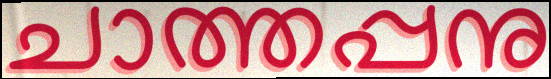
ചാത്തപ്പനു